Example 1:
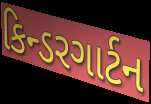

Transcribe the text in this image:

કિન્ડરગાર્ટન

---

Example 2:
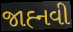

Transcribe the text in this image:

જાહ્‍નવી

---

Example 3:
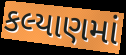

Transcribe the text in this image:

કલ્યાણમાં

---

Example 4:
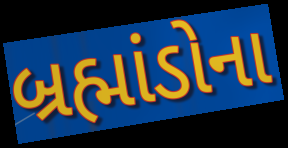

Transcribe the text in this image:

બ્રહ્માંડોના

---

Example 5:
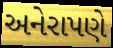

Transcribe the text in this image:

અનેરાપણે